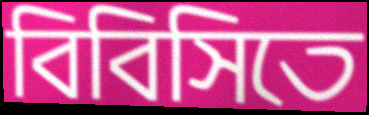
বিবিসিতে